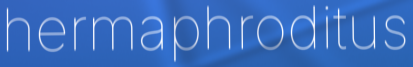
hermaphroditus